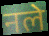
नले